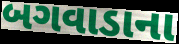
બગવાડાના